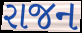
રાજન